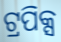
ଟ୍ରପିକ୍ସ